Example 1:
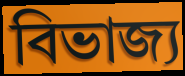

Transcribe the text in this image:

বিভাজ্য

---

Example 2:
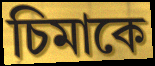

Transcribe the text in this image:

চিমাকে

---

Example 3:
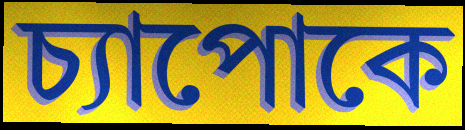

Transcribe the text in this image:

চ্যাপোকে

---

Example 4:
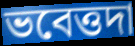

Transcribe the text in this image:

ভবেত্তদা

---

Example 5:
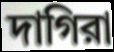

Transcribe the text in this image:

দাগিরা